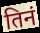
तिनं